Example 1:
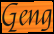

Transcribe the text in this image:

Geng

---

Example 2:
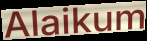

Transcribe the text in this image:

Alaikum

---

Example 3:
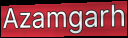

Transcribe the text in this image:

Azamgarh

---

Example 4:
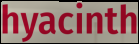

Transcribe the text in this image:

hyacinth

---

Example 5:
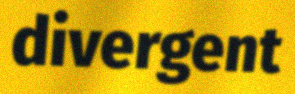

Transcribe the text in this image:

divergent